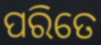
ପରିତେ